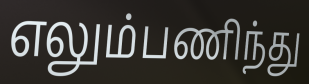
எலும்பணிந்து